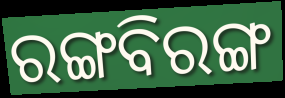
ରଙ୍ଗବିରଙ୍ଗ